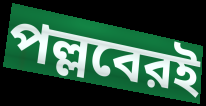
পল্লবেরই